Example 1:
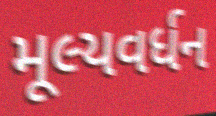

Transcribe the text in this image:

મૂલ્યવર્ધન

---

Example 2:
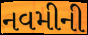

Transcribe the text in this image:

નવમીની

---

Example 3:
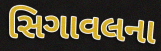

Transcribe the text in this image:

સિગાવલના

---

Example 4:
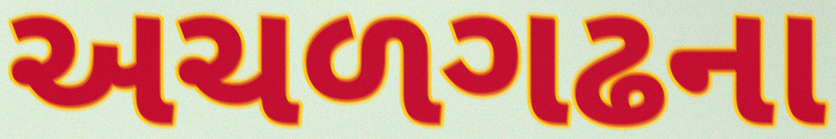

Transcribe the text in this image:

અચળગઢના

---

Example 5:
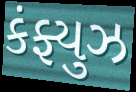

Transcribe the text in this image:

કંફ્યુઝ